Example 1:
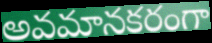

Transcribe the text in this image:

అవమానకరంగా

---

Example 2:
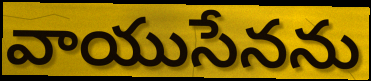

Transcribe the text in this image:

వాయుసేనను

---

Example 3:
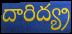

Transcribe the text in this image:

దారిద్య్ర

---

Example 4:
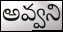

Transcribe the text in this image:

అవ్వని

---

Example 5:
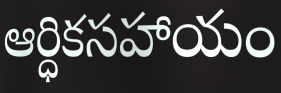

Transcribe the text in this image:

ఆర్ధికసహాయం